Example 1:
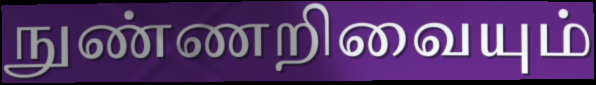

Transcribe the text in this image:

நுண்ணறிவையும்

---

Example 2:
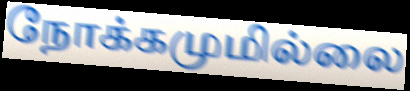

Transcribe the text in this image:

நோக்கமுமில்லை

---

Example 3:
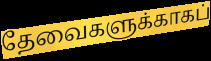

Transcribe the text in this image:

தேவைகளுக்காகப்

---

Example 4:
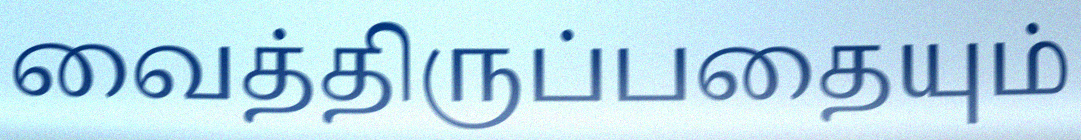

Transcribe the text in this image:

வைத்திருப்பதையும்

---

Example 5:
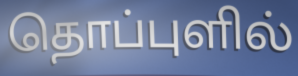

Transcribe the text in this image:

தொப்புளில்